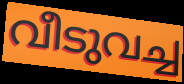
വീടുവച്ച